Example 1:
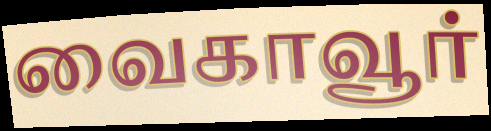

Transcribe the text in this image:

வைகாவூர்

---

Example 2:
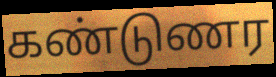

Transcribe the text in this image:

கண்டுணர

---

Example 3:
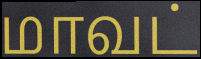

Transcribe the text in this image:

மாவட்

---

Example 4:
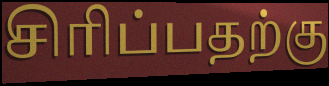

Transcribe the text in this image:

சிரிப்பதற்கு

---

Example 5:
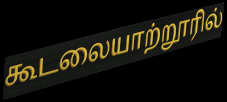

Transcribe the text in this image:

கூடலையாற்றூரில்